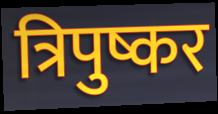
त्रिपुष्कर